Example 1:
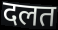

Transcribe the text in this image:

दलत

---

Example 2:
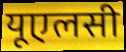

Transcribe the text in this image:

यूएलसी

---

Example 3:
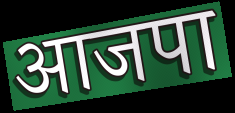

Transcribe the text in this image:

आजपा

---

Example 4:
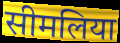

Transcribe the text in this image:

सीमलिया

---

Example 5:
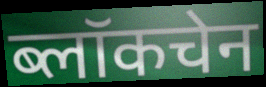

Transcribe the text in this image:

ब्लॉकचेन